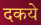
दकये